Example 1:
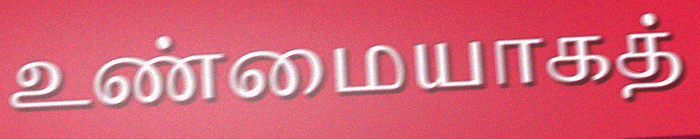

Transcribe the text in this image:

உண்மையாகத்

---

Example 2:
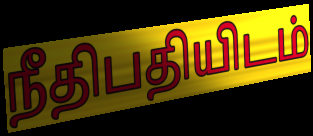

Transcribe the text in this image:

நீதிபதியிடம்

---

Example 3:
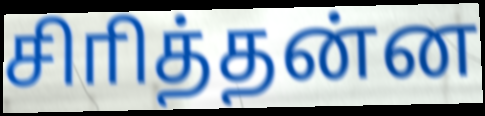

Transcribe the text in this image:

சிரித்தன்ன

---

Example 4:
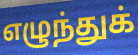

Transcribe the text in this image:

எழுந்துக்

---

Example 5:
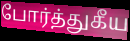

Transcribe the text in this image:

போர்த்துகீய